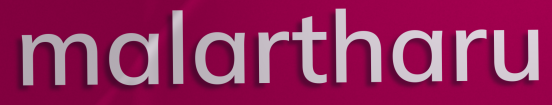
malartharu